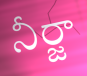
నీర్జా